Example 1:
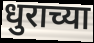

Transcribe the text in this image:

धुराच्या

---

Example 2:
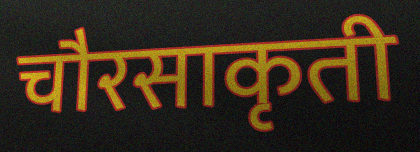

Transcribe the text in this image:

चौरसाकृती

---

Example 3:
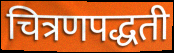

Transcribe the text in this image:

चित्रणपद्धती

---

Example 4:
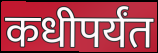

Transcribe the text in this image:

कधीपर्यंत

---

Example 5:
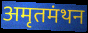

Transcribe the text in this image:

अमृतमंथन